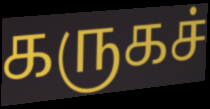
கருகச்